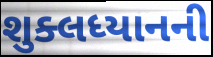
શુક્લધ્યાનની